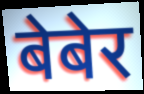
बेबेर